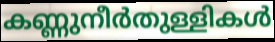
കണ്ണുനീർതുള്ളികൾ